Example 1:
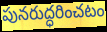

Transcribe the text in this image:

పునరుద్ధరించటం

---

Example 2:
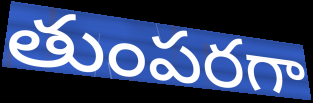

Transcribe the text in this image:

తుంపరగా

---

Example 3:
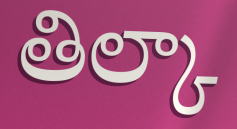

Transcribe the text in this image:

తిల్కా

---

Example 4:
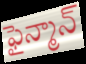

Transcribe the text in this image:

ఫైన్మాన్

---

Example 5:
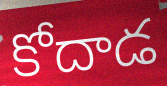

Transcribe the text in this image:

కోదాడ